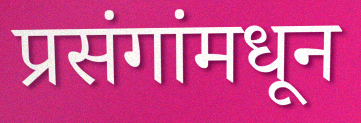
प्रसंगांमधून